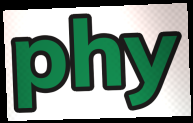
phy